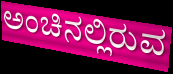
ಅಂಚಿನಲ್ಲಿರುವ